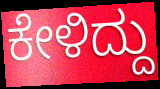
ಕೇಳಿದ್ದು